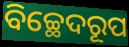
ବିଚ୍ଛେଦରୂପ